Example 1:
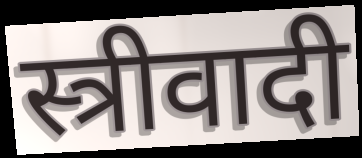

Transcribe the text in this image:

स्त्रीवादी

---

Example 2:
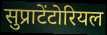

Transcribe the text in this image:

सुप्राटेंटोरियल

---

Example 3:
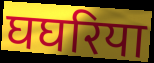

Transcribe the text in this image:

घघरिया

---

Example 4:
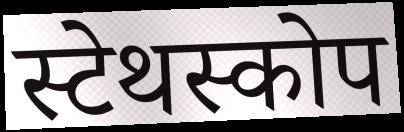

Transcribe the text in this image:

स्टेथस्कोप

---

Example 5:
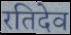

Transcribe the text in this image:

रतिदेव